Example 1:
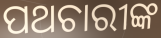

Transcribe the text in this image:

ପଥଚାରୀଙ୍କ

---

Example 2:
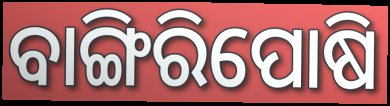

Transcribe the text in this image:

ବାଙ୍ଗିରିପୋଷି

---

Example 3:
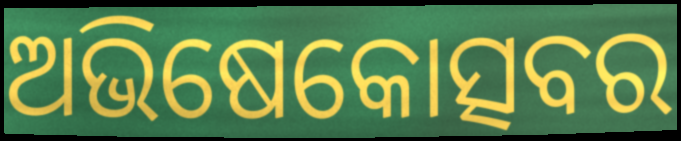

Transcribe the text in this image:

ଅଭିଷେକୋତ୍ସବର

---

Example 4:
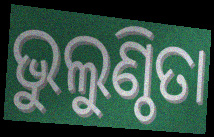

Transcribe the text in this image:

ଭୁଲୁଣ୍ଠିତା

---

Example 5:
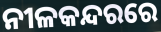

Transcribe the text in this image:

ନୀଳକନ୍ଦରରେ